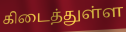
கிடைத்துள்ள